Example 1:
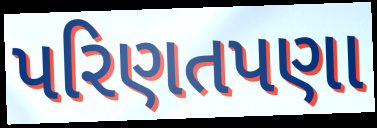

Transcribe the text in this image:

પરિણતપણા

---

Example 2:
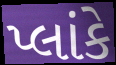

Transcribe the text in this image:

પ્લાંકે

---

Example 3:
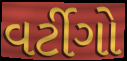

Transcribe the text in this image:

વર્ટીગો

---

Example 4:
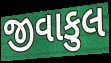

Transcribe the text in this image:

જીવાકુલ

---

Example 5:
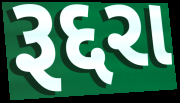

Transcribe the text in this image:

રૂદ્દરા